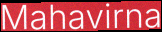
Mahavirna